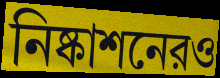
নিষ্কাশনেরও